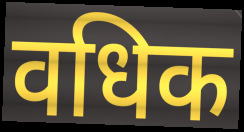
वधिक